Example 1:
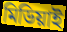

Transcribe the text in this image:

মিডিয়াই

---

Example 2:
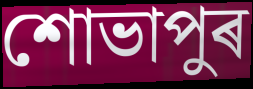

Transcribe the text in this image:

শোভাপুৰ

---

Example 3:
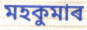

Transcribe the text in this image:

মহকুমাৰ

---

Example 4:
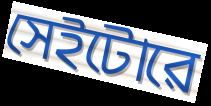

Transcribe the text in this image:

সেইটোৱে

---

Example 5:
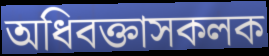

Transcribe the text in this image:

অধিবক্তাসকলক